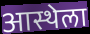
आस्थेला